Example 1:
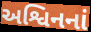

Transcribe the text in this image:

અશ્વિનનાં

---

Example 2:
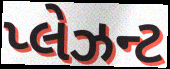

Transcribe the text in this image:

પ્લેઝન્ટ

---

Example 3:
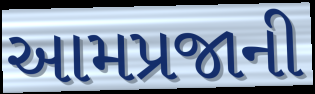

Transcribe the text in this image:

આમપ્રજાની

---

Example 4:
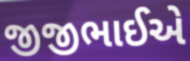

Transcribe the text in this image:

જીજીભાઈએ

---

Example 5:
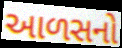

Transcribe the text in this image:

આળસનો